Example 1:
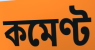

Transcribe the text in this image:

কমেণ্ট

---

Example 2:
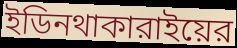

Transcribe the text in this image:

ইডিনথাকারাইয়ের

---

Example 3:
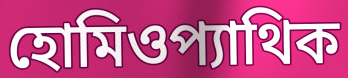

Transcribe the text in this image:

হোমিওপ্যাথিক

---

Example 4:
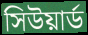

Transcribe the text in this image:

সিউয়ার্ড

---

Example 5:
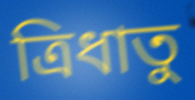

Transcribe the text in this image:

ত্রিধাতু